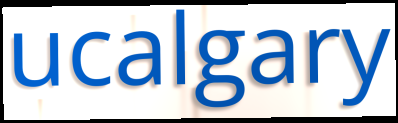
ucalgary